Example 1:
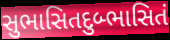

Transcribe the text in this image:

સુભાસિતદુબ્ભાસિતં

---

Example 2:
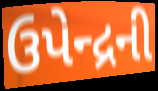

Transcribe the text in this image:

ઉપેન્દ્રની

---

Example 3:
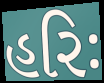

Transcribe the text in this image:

હરિઃ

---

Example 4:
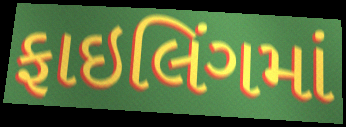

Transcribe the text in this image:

ફાઇલિંગમાં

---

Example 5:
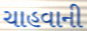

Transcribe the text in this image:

ચાહવાની